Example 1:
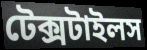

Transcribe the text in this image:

টেক্সটাইলস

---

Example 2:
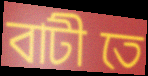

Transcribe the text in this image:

বাটীতে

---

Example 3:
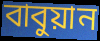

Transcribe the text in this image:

বাবুয়ান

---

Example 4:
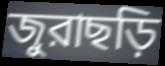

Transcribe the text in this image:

জুরাছড়ি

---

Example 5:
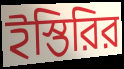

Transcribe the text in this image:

ইস্তিরির